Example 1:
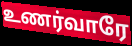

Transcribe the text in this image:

உணர்வாரே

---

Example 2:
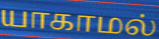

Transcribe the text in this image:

யாகாமல்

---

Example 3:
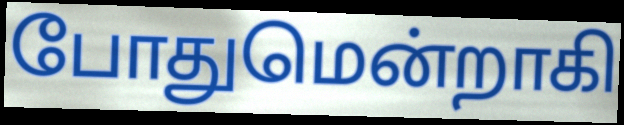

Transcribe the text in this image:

போதுமென்றாகி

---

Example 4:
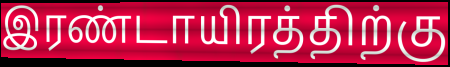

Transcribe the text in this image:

இரண்டாயிரத்திற்கு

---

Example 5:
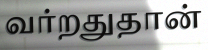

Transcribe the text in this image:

வர்றதுதான்